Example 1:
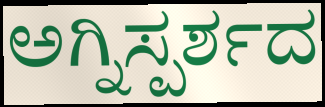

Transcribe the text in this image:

ಅಗ್ನಿಸ್ಪರ್ಶದ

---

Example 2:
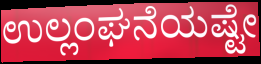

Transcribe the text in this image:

ಉಲ್ಲಂಘನೆಯಷ್ಟೇ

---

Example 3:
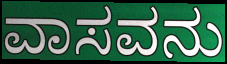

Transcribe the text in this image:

ವಾಸವನು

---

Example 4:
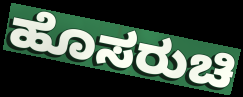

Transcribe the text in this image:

ಹೊಸರುಚಿ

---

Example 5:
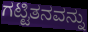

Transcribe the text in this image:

ಗಟ್ಟಿತನವನ್ನು